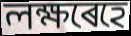
লক্ষৰেহে